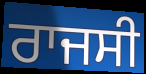
ਰਾਜਸੀ